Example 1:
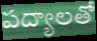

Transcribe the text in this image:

పద్యాలతో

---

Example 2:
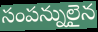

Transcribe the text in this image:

సంపన్నులైన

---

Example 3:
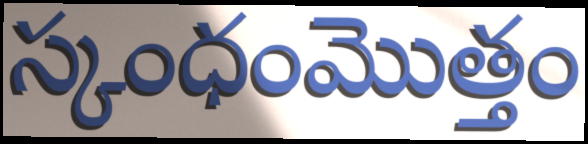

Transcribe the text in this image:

స్కంధంమొత్తం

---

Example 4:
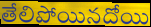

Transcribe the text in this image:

తేలిపోయినదోయి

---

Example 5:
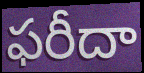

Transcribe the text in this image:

ఫరీదా